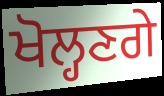
ਖੋਲ੍ਹਣਗੇ